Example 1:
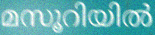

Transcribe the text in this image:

മസൂറിയിൽ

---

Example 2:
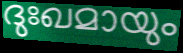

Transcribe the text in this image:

ദുഃഖമായും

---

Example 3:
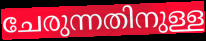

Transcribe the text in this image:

ചേരുന്നതിനുള്ള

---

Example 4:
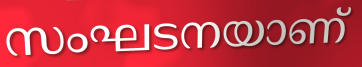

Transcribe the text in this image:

സംഘടനയാണ്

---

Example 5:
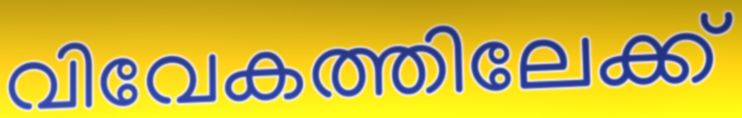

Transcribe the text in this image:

വിവേകത്തിലേക്ക്